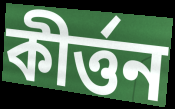
কীর্ত্তন